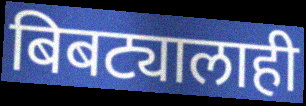
बिबट्यालाही